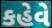
કહેવે